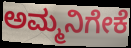
ಅಮ್ಮನಿಗೇಕೆ